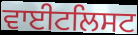
ਵਾਈਟਲਿਸਟ